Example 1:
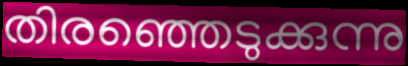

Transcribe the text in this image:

തിരഞ്ഞെടുക്കുന്നു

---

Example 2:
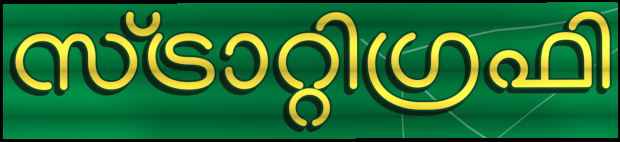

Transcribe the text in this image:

സ്ട്രാറ്റിഗ്രഫി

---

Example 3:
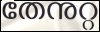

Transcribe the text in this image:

തേനുറ്റ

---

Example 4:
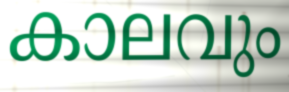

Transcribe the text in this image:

കാലവും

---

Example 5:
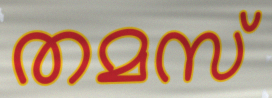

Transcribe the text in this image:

തമസ്